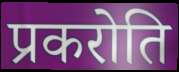
प्रकरोति